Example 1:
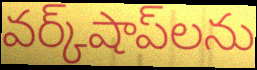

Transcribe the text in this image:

వర్క్‌షాప్‌లను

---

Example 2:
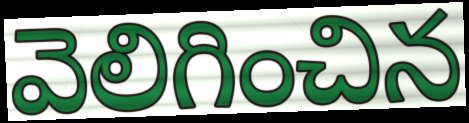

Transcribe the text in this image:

వెలిగించిన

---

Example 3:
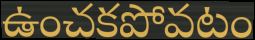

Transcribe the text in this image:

ఉంచకపోవటం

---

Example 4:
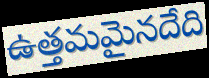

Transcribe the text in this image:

ఉత్తమమైనదేది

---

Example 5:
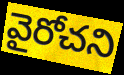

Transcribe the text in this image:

వైరోచని